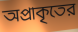
অপ্রাকৃতের